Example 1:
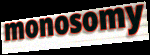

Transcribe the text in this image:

monosomy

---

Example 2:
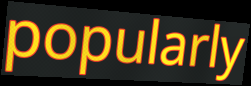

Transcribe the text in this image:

popularly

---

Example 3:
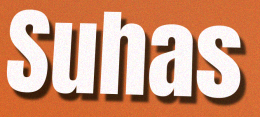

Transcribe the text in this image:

Suhas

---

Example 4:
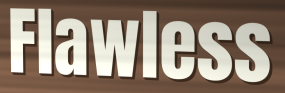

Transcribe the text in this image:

Flawless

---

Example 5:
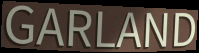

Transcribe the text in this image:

GARLAND